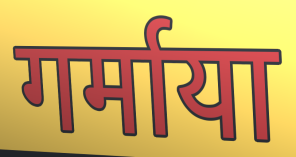
गर्माया